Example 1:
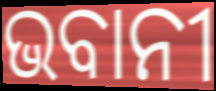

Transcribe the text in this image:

ଭବାନୀ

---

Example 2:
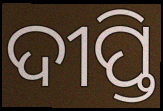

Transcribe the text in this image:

ଦୀପ୍ତି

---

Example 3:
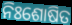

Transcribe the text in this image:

ନିଃଶୋଷିତ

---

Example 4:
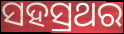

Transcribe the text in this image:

ସହସ୍ରଥର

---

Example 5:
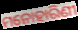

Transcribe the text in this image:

ମନୋହାରିଣୀ